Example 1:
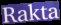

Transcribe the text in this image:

Rakta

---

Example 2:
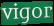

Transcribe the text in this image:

vigor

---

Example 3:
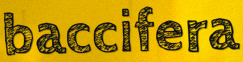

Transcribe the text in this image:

baccifera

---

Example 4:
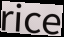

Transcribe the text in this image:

rice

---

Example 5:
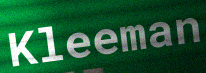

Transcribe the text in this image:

Kleeman